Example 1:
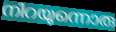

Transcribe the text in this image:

നിറയുന്നൊരു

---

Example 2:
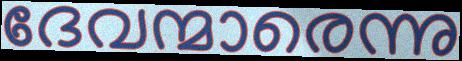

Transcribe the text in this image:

ദേവന്മാരെന്നു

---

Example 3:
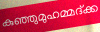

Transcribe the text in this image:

കുഞ്ഞുമുഹമ്മദ്ക്ക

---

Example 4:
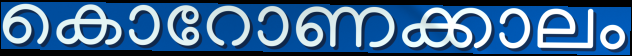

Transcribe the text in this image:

കൊറോണക്കാലം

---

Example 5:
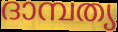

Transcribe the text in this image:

ദാമ്പത്യ